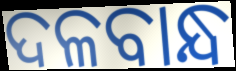
ଦଳବାନ୍ଧ